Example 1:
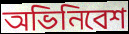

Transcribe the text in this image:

অভিনিবেশ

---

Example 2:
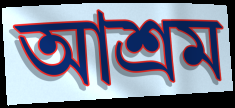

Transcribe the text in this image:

আশ্ৰম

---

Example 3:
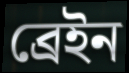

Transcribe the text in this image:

ব্ৰেইন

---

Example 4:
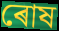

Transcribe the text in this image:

ৰোষ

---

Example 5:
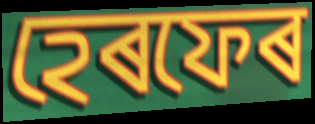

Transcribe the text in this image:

হেৰফেৰ